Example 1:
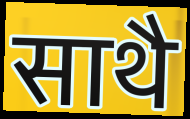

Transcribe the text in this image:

साथै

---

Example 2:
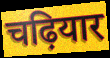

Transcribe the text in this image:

चढ़ियार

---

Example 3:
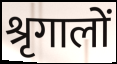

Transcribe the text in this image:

श्रृगालों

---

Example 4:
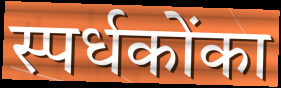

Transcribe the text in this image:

स्पर्धकोंका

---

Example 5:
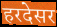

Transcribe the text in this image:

हरदेसर